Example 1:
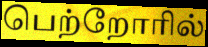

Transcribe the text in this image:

பெற்றோரில்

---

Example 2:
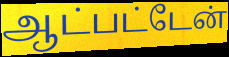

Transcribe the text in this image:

ஆட்பட்டேன்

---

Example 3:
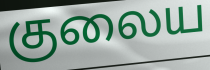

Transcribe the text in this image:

குலைய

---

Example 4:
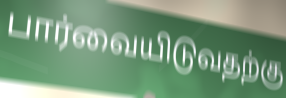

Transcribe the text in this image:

பார்வையிடுவதற்கு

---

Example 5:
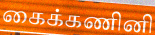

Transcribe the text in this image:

கைக்கணினி